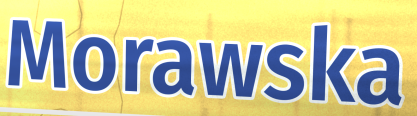
Morawska